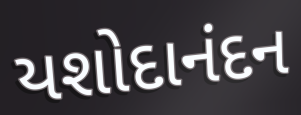
યશોદાનંદન